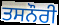
ਤਸਨੌਰੀ